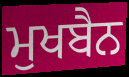
ਮੁਖਬੈਨ